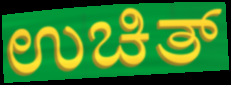
ಉಚಿತ್